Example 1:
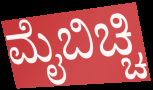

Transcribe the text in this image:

ಮೈಬಿಚ್ಚಿ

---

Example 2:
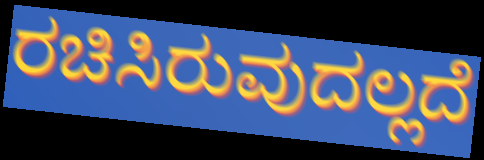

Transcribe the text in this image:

ರಚಿಸಿರುವುದಲ್ಲದೆ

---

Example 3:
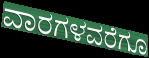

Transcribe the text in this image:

ವಾರಗಳವರೆಗೂ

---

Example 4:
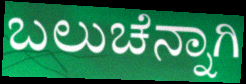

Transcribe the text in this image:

ಬಲುಚೆನ್ನಾಗಿ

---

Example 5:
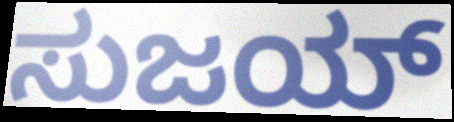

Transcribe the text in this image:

ಸುಜಯ್